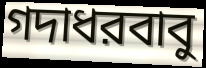
গদাধরবাবু